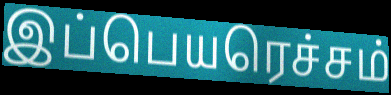
இப்பெயரெச்சம்